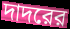
দাদরের